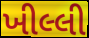
ખીલ્લી